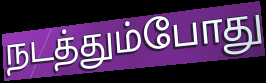
நடத்தும்போது